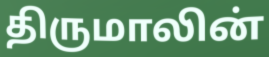
திருமாலின்